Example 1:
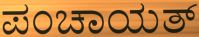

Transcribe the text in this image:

ಪಂಚಾಯತ್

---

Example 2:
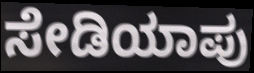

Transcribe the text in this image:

ಸೇಡಿಯಾಪು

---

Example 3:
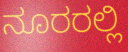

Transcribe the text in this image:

ನೂರರಲ್ಲಿ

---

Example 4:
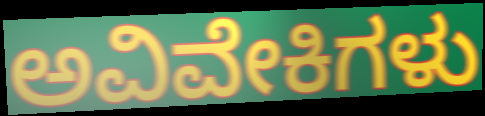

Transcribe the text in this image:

ಅವಿವೇಕಿಗಳು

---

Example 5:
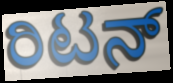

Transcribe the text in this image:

ರಿಟನ್